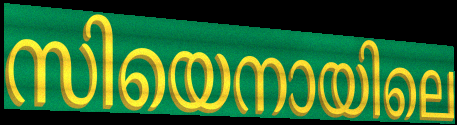
സിയെനായിലെ